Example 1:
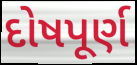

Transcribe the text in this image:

દોષપૂર્ણ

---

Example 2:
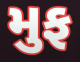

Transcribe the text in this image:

મુફ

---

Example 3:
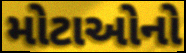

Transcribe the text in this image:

મોટાઓનો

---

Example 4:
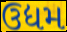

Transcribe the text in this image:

ઉદ્યમ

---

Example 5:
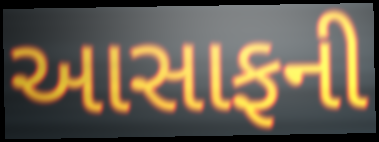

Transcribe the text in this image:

આસાફની